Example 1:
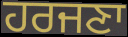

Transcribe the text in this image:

ਹਰਜਣਾ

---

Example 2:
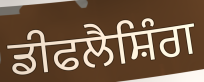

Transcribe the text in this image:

ਡੀਫਲੈਸ਼ਿੰਗ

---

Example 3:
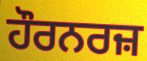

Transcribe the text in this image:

ਹੌਰਨਰਜ਼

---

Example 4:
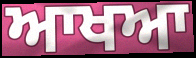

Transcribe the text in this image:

ਆਖਆ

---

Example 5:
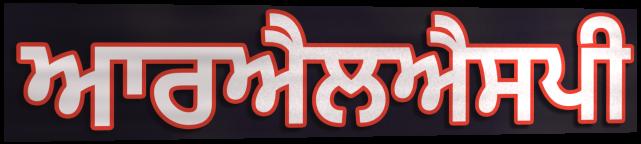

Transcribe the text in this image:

ਆਰਐਲਐਸਪੀ